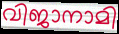
വിജാനാമി